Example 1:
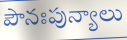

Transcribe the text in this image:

పౌనఃపున్యాలు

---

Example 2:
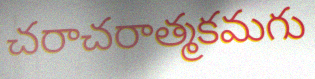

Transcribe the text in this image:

చరాచరాత్మకమగు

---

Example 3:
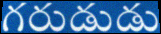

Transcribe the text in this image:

గరుడుడు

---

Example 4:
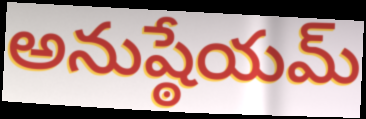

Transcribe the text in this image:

అనుష్ఠేయమ్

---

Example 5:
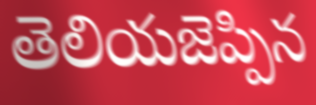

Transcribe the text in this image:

తెలియజెప్పిన